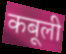
कबूली